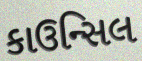
કાઉન્‍સિલ